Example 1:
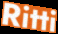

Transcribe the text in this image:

Ritti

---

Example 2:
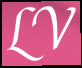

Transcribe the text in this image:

LV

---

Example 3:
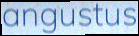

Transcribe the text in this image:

angustus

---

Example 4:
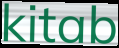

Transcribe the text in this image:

kitab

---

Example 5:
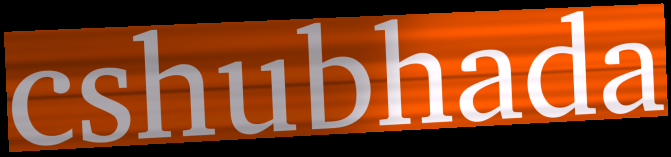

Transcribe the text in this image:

cshubhada